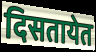
दिसतायेत